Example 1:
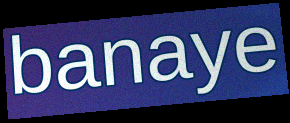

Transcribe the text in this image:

banaye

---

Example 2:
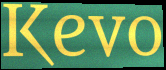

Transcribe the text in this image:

Kevo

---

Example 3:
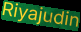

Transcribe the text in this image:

Riyajudin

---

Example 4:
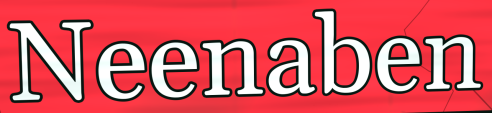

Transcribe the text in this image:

Neenaben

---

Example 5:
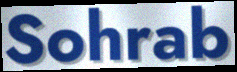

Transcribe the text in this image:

Sohrab